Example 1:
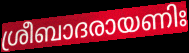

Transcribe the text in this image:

ശ്രീബാദരായണിഃ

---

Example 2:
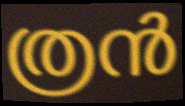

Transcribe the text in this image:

ത്രൻ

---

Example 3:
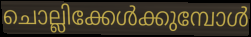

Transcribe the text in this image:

ചൊല്ലിക്കേൾക്കുമ്പോൾ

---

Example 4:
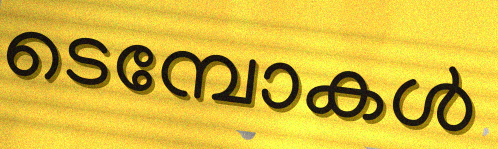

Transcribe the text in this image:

ടെമ്പോകൾ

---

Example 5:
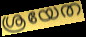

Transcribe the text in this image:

ശ്രയേത